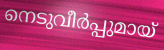
നെടുവീർപ്പുമായ്